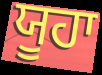
ਯੂਹਾ